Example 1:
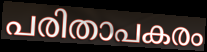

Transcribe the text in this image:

പരിതാപകരം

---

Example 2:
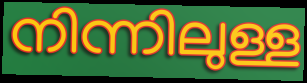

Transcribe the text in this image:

നിന്നിലുള്ള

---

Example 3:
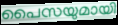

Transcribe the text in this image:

പൈസയുമായി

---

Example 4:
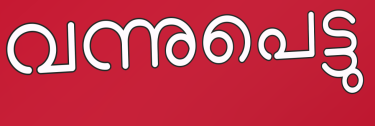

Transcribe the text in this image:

വന്നുപെട്ടു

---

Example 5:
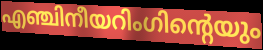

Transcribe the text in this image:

എഞ്ചിനീയറിംഗിന്റെയും